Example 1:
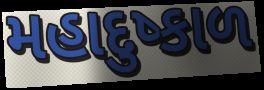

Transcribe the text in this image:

મહાદુષ્કાળ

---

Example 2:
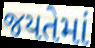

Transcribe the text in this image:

જયતેમાં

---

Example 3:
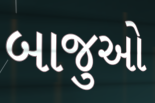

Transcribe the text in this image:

બાજુઓ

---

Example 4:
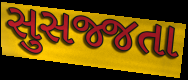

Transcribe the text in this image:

સુસજ્જતા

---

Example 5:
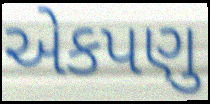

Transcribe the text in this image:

એકપણુ